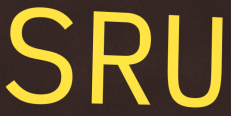
SRU